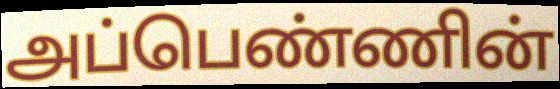
அப்பெண்ணின்